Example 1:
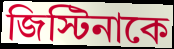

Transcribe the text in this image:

জিস্টিনাকে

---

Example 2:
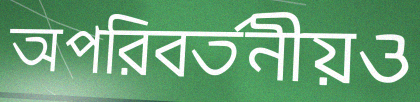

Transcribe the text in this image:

অপরিবর্তনীয়ও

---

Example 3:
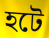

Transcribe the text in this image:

হটে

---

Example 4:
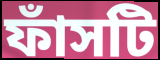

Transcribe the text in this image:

ফাঁসটি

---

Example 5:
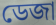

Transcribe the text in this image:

ডেজা